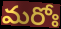
మరోః